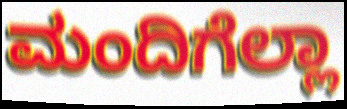
ಮಂದಿಗೆಲ್ಲಾ